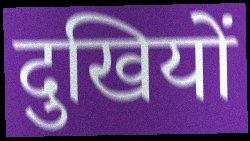
दुखियों